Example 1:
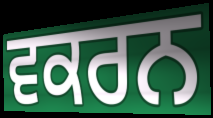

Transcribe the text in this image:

ਵਕਰਨ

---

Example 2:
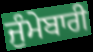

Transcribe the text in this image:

ਜੁੰਮੇਬਾਰੀ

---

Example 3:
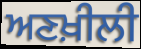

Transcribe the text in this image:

ਅਣਖ਼ੀਲੀ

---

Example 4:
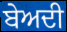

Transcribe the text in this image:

ਬੇਅਦੀ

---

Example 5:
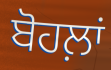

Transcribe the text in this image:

ਬੋਹਲ਼ਾਂ